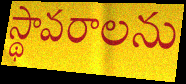
స్థావరాలను